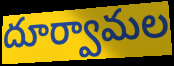
దూర్వామల